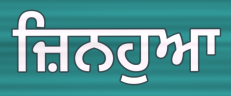
ਜ਼ਿਨਹੁਆ